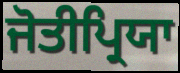
ਜੋਤੀਪ੍ਰਿਯਾ